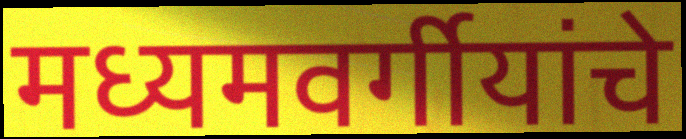
मध्यमवर्गीयांचे